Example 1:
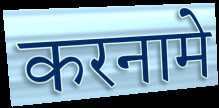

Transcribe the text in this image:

करनामे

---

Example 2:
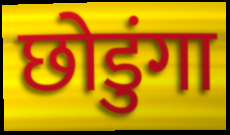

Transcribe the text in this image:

छोडुंगा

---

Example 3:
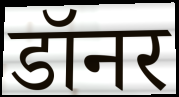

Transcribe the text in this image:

डॉनर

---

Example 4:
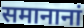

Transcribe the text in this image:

समानानां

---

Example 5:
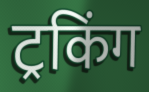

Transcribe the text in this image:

ट्रकिंग